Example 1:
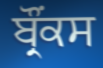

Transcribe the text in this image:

ਬ੍ਰੌਂਕਸ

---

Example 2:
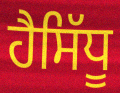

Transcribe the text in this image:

ਹੈਸਿੱਧੂ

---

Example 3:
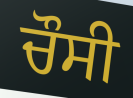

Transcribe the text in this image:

ਚੌਸੀ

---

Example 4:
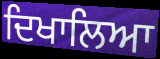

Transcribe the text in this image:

ਦਿਖਾਲਿਆ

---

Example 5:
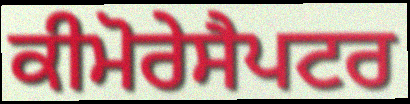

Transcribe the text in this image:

ਕੀਮੋਰੇਸੈਪਟਰ